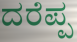
ದರೆಪ್ಪ